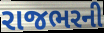
રાજભરની